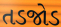
તડજોડ